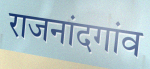
राजनांदगांव